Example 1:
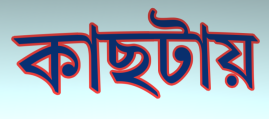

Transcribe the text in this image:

কাছটায়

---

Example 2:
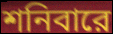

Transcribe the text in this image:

শনিবারে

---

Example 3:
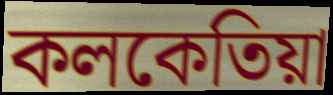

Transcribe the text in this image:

কলকেতিয়া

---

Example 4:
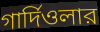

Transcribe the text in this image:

গার্দিওলার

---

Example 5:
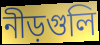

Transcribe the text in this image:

নীড়গুলি